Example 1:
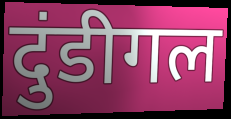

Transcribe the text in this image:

दुंडीगल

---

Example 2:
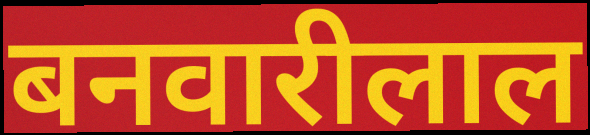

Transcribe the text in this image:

बनवारीलाल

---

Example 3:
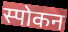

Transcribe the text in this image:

स्पोकन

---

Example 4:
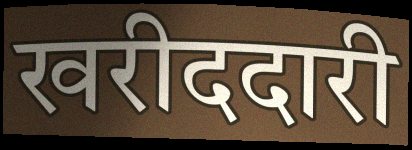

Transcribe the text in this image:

खरीददारी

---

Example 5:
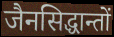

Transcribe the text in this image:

जैनसिद्धान्तों